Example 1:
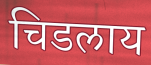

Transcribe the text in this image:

चिडलाय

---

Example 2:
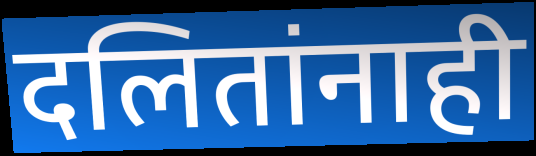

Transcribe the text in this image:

दलितांनाही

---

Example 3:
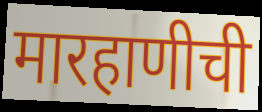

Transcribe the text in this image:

मारहाणीची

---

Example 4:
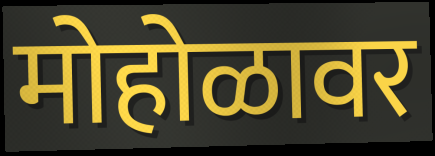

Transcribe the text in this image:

मोहोळावर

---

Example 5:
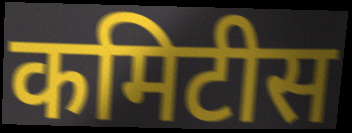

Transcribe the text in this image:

कमिटीस